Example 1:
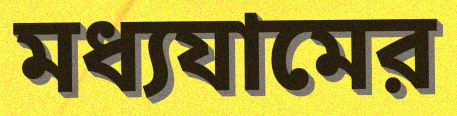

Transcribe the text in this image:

মধ্যযামের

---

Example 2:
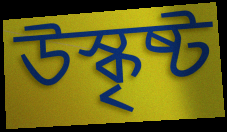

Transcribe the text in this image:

উস্কৃষ্ট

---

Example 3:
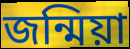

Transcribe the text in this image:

জন্মিয়া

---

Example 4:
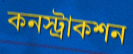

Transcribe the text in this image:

কনস্ট্রাকশন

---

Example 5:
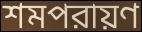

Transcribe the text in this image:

শমপরায়ণ